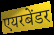
एयरबेंडर